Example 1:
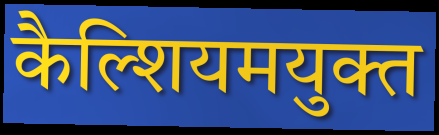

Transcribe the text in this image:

कैल्शियमयुक्त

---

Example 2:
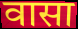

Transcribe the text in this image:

वासा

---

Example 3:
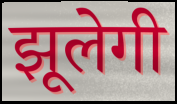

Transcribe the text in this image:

झूलेगी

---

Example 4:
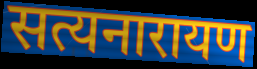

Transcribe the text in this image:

सत्यनारायण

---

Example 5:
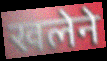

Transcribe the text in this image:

खलेने